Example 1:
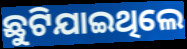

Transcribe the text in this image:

ଛୁଟିଯାଇଥିଲେ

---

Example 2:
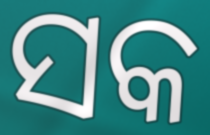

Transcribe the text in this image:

ସକ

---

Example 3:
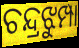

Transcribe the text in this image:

ଚନ୍ଦ୍ରଝୁମ୍ପା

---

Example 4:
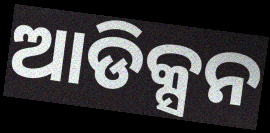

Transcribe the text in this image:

ଆଡିକ୍ସନ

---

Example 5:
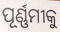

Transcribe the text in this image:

ପୂର୍ଣ୍ଣମୀକୁ